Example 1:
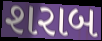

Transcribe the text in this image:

શરાબ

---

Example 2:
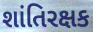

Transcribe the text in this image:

શાંતિરક્ષક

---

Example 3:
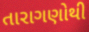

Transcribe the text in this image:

તારાગણોથી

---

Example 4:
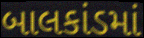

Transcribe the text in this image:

બાલકાંડમાં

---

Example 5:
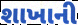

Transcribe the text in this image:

શાખાની